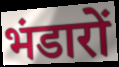
भंडारों